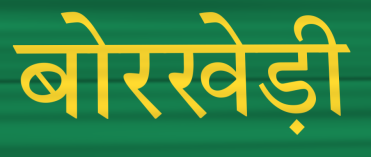
बोरखेड़ी